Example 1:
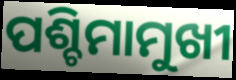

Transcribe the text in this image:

ପଶ୍ଚିମାମୁଖୀ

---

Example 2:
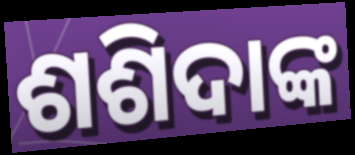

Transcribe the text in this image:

ଶଶିଦାଙ୍କ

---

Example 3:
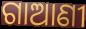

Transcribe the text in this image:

ଗାଆଣୀ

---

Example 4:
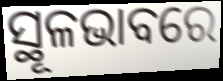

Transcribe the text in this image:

ସ୍ଥୂଳଭାବରେ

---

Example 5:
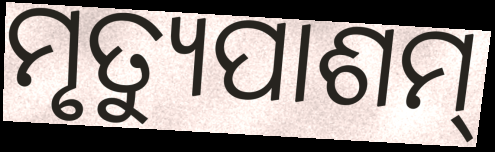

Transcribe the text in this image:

ମୃତ୍ୟୁପାଶମ୍